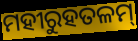
ମହୀରୁହତଳମ୍